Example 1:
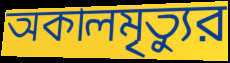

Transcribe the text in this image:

অকালমৃত্যুর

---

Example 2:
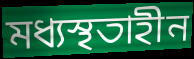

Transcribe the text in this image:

মধ্যস্থতাহীন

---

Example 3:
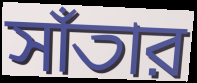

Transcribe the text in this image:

সাঁতার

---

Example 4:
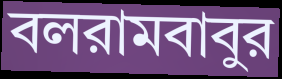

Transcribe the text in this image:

বলরামবাবুর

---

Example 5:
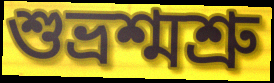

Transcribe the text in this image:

শুভ্রশ্মশ্রু